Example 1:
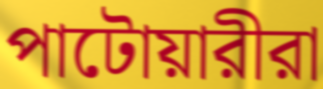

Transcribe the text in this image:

পাটোয়ারীরা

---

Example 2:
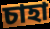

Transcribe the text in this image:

চাহা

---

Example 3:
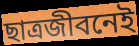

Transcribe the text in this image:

ছাত্রজীবনেই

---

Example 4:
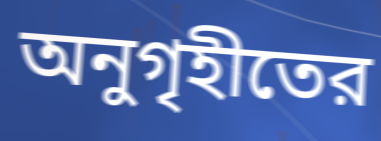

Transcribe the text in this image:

অনুগৃহীতের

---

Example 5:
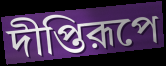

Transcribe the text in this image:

দীপ্তিরূপে